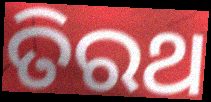
ତିରଥ